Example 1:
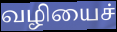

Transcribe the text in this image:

வழியைச்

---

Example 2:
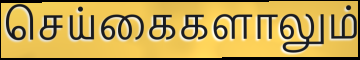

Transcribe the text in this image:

செய்கைகளாலும்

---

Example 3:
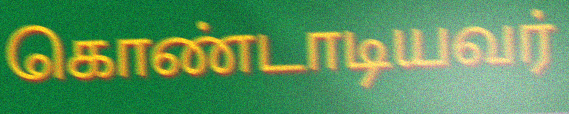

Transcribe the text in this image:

கொண்டாடியவர்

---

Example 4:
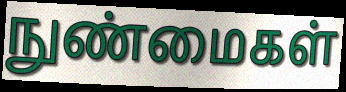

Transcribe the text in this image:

நுண்மைகள்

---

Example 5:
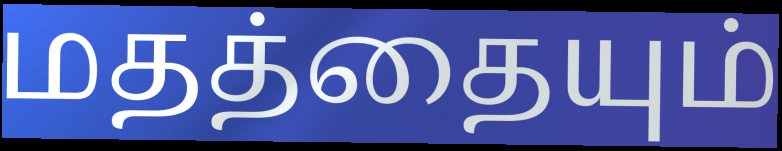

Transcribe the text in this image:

மதத்தையும்